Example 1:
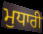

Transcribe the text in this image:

ਮੁਧਾਰੀ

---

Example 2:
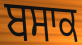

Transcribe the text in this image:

ਬਸਾਕ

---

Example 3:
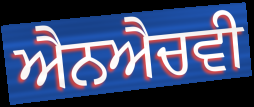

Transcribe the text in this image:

ਐਨਐਚਵੀ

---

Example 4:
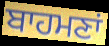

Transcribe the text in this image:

ਬਾਹਮਣਾਂ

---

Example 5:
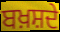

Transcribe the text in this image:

ਬਖ਼ਸ਼ਦੇ